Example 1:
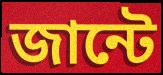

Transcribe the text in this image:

জান্টে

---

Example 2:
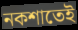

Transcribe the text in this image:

নকশাতেই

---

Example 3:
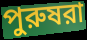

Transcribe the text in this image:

পুরুষরা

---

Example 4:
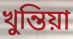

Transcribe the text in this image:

খুন্তিয়া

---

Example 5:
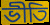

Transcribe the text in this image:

ভীতি